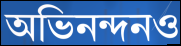
অভিনন্দনও